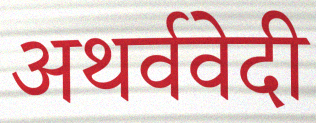
अथर्ववेदी